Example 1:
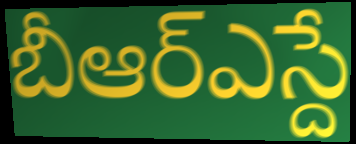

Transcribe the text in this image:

బీఆర్ఎస్దే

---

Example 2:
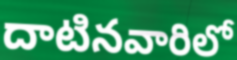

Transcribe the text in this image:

దాటినవారిలో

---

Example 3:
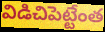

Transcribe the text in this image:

విడిచిపెట్టేంత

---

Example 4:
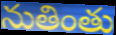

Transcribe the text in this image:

నుతింతు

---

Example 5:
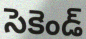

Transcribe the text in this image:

సెకెండ్